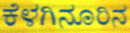
ಕೆಳಗಿನೂರಿನ